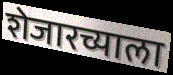
शेजारच्याला